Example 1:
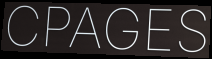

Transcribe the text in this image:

CPAGES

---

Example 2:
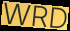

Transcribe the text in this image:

WRD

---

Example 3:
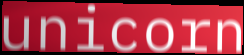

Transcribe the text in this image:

unicorn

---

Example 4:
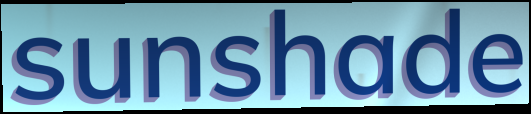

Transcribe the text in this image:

sunshade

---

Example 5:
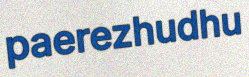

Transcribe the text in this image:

paerezhudhu